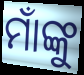
ମାଁଙ୍କୁ